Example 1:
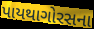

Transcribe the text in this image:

પાયથાગોરસના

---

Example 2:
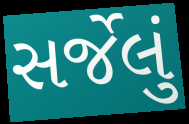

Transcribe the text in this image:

સર્જેલું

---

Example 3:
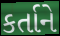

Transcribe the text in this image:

કર્તાને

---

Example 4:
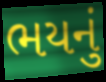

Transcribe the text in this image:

ભયનું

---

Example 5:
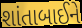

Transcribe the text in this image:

શાંતાબાઈને